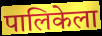
पालिकेला